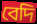
বেদি